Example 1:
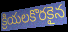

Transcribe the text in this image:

క్రియలకొరకైన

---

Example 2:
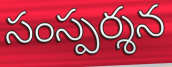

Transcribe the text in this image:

సంస్పర్శన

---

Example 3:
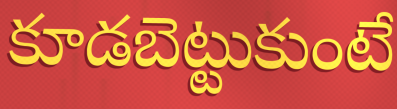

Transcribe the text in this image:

కూడబెట్టుకుంటే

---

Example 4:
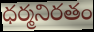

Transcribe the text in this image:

ధర్మనిరతం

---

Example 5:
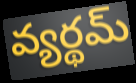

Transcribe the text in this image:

వ్యర్థమ్